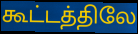
கூட்டத்திலே